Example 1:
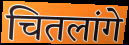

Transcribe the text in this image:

चितलांगे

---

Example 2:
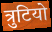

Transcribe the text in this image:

त्रुटियो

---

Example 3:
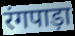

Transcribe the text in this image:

रंगपाड़ा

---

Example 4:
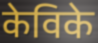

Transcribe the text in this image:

केविके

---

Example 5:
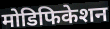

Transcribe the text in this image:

मोडिफिकेशन